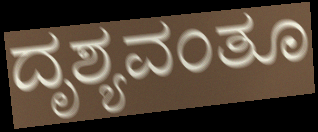
ದೃಶ್ಯವಂತೂ